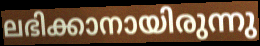
ലഭിക്കാനായിരുന്നു